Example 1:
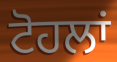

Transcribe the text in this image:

ਟੋਹਲਾਂ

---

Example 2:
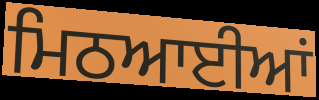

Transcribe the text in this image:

ਮਿਠਆਈਆਂ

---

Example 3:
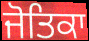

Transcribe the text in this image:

ਜੋਤਿਕਾ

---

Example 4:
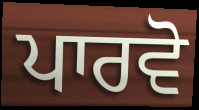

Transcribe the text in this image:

ਪਾਰਵੋ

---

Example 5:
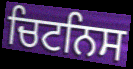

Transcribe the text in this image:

ਚਿਟਨਿਸ